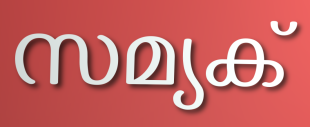
സമ്യക്